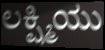
ಲಕ್ಷ್ಮಿಯು